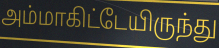
அம்மாகிட்டேயிருந்து